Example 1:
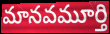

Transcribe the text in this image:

మానవమూర్తి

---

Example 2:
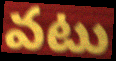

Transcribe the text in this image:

వటు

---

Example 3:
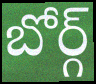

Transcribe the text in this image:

బోర్గ్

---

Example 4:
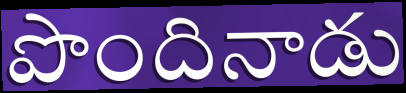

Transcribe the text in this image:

పొందినాడు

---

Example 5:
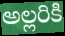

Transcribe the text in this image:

అల్లరికి